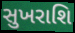
સુખરાશિ